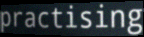
practising